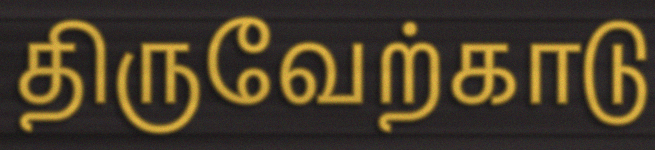
திருவேற்காடு